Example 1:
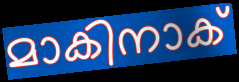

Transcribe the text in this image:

മാകിനാക്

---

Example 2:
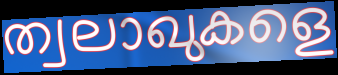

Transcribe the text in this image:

ത്വലാഖുകളെ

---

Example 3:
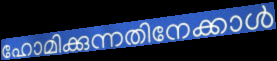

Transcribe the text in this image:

ഹോമിക്കുന്നതിനേക്കാൾ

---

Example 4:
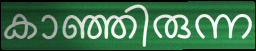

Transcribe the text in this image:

കാഞ്ഞിരുന്ന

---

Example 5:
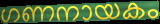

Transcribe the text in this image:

ഗണനായകം